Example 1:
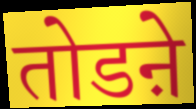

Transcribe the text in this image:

तोडऩे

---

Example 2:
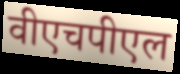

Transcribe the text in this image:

वीएचपीएल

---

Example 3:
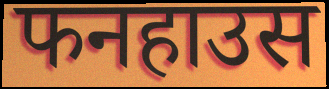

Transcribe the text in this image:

फनहाउस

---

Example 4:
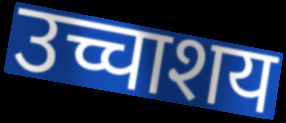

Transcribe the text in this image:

उच्चाशय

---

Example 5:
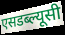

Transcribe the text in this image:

एसडब्ल्यूसी